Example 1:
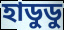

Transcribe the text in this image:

হাডুডু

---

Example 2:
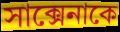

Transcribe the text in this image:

সাক্সেনাকে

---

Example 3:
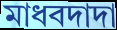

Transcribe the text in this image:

মাধবদাদা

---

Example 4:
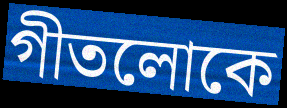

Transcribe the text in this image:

গীতলোকে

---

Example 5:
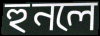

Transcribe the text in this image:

হুনলে